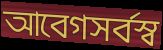
আবেগসর্বস্ব